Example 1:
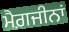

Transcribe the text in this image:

ਮੈਗ਼ਜੀਨਾਂ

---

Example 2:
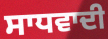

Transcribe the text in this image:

ਸਾਧਵਾਦੀ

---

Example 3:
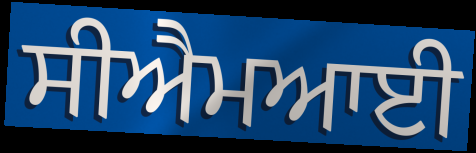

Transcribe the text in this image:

ਸੀਐਮਆਈ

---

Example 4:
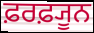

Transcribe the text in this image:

ਫ਼ਰਫ਼੍ਯੂਨ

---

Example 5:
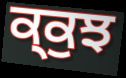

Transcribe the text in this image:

ਕ੍ਕੁਝ